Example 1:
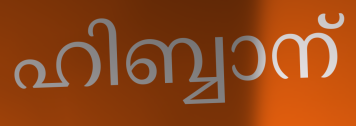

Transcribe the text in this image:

ഹിബ്ബാന്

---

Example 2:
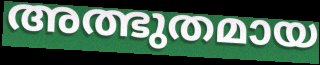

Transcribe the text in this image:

അത്ഭുതമായ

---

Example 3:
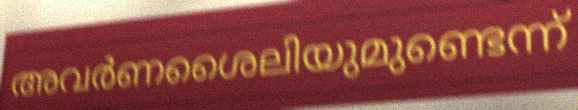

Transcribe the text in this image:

അവർണശൈലിയുമുണ്ടെന്ന്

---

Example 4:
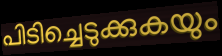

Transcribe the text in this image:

പിടിച്ചെടുക്കുകയും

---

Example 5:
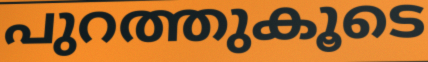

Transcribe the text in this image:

പുറത്തുകൂടെ